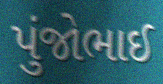
પુંજોભાઈ